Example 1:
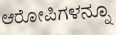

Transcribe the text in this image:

ಆರೋಪಿಗಳನ್ನೂ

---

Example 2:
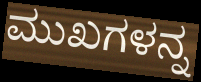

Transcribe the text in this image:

ಮುಖಗಳನ್ನ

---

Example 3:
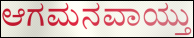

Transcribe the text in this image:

ಆಗಮನವಾಯ್ತು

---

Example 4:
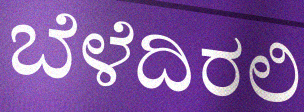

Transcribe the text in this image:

ಬೆಳೆದಿರಲಿ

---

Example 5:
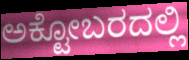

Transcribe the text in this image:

ಅಕ್ಟೋಬರದಲ್ಲಿ